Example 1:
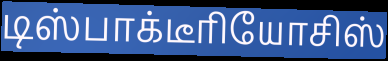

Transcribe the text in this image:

டிஸ்பாக்டீரியோசிஸ்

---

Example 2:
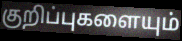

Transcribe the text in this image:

குறிப்புகளையும்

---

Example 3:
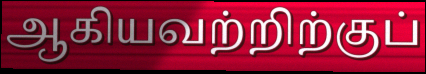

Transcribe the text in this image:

ஆகியவற்றிற்குப்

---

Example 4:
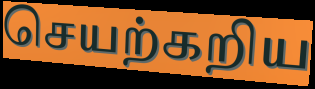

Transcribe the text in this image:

செயற்கறிய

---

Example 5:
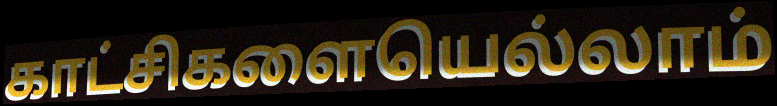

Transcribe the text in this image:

காட்சிகளையெல்லாம்